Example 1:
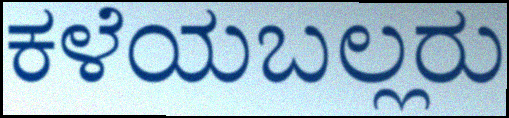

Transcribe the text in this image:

ಕಳೆಯಬಲ್ಲರು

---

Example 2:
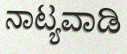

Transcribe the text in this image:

ನಾಟ್ಯವಾಡಿ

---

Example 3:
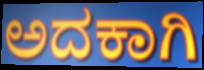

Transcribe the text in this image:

ಅದಕಾಗಿ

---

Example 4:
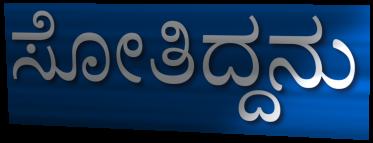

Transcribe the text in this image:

ಸೋತಿದ್ದನು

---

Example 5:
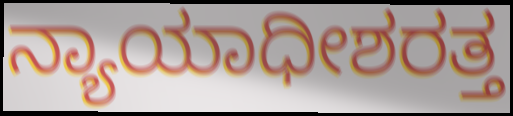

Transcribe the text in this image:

ನ್ಯಾಯಾಧೀಶರತ್ತ